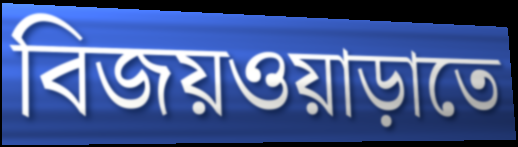
বিজয়ওয়াড়াতে